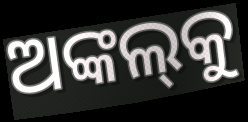
ଅଙ୍କଲ୍‌କୁ